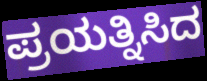
ಪ್ರಯತ್ನಿಸಿದ